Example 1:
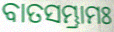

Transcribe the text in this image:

ବାତସମ୍ଭ୍ରାମଃ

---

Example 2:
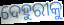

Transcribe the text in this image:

ଦେହୁରୀକୁ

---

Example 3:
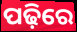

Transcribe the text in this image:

ପଢ଼ିରେ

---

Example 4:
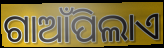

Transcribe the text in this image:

ଗାଆଁପିଲାଏ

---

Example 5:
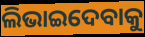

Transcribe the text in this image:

ଲିଭାଇଦେବାକୁ